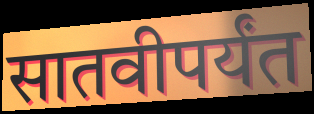
सातवीपर्यंत